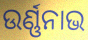
ଉର୍ଣ୍ଣନାଭ